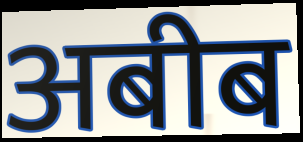
अबीब